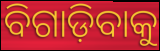
ବିଗାଡ଼ିବାକୁ